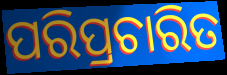
ପରିପ୍ରଚାରିତ